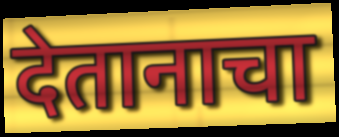
देतानाचा